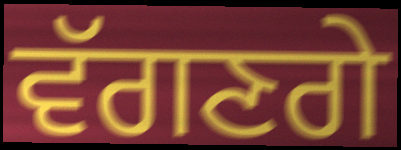
ਵੱਗਣਗੇ